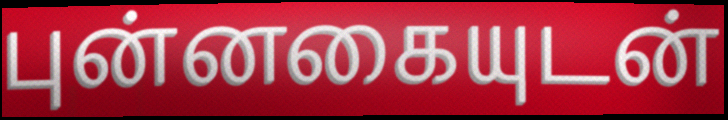
புன்னகையுடன்